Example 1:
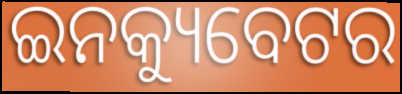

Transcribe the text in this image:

ଇନକ୍ୟୁବେଟର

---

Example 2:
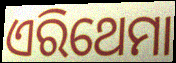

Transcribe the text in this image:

ଏରିଥେମା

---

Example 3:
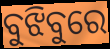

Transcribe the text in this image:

ବୁଝିବୁରେ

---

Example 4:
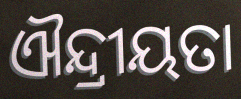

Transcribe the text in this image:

ଐନ୍ଦ୍ରୀୟତା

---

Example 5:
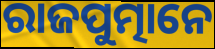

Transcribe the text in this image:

ରାଜପୁତ୍ମାନେ